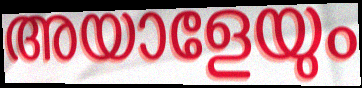
അയാളേയും